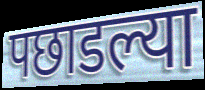
पछाडल्या